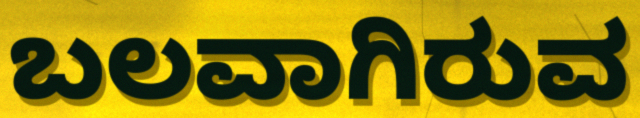
ಬಲವಾಗಿರುವ